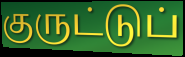
குருட்டுப்